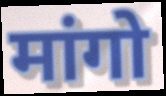
मांगो